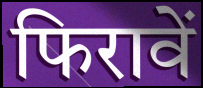
फिरावें